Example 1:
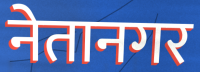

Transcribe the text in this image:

नेतानगर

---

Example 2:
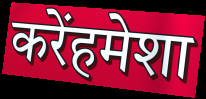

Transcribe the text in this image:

करेंहमेशा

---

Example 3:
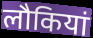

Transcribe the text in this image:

लौकियां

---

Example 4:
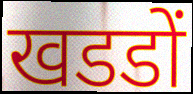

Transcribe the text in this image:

खडडों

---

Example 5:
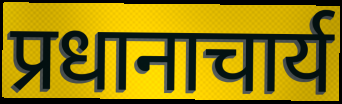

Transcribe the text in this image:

प्रधानाचार्य